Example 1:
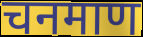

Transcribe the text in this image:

चनमाण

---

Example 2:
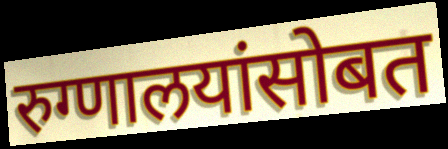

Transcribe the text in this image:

रुग्णालयांसोबत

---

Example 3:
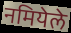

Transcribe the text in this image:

नमियेले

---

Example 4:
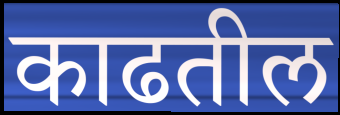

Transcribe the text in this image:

काढतील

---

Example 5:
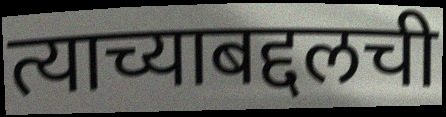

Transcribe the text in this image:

त्याच्याबद्दलची